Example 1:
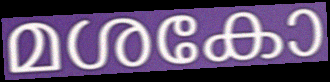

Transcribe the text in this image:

മശകോ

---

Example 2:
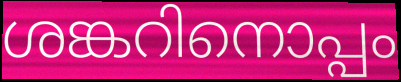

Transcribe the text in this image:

ശങ്കറിനൊപ്പം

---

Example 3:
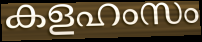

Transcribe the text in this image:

കളഹംസം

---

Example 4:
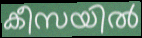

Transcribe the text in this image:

കീസയിൽ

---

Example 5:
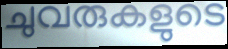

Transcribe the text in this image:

ചുവരുകളുടെ